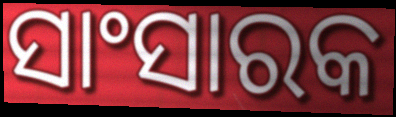
ସାଂସାରକ